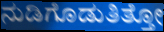
ನುಡಿಗೊಡುತಿತ್ತೋ